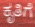
ಕೃತಿಗೆ